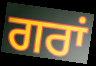
ਗਰਾਂ